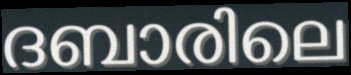
ദബാരിലെ